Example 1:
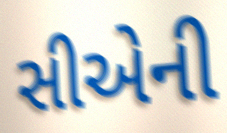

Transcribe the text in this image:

સીએની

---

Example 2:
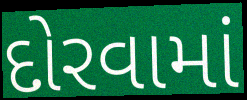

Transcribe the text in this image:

દોરવામાં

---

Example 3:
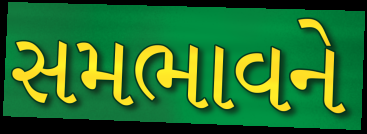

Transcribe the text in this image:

સમભાવને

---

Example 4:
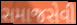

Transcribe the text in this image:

સમાજસેવી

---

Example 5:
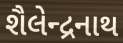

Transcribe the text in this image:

શૈલેન્દ્રનાથ